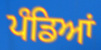
ਪੰਡਿਆਂ